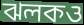
ঝলকও